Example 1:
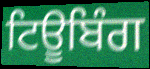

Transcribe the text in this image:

ਟਿਊਬਿੰਗ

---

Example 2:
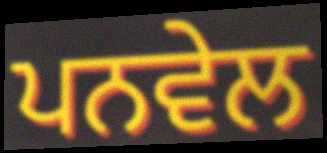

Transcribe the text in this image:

ਪਨਵੇਲ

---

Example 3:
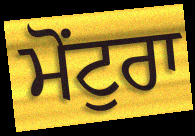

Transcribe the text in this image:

ਮੋਂਟੁਰਾ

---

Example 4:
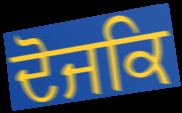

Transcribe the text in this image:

ਦੋਜਕਿ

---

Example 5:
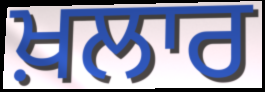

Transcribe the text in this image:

ਖ਼ਲਾਰ